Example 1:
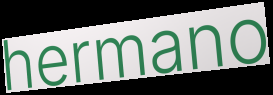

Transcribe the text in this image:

hermano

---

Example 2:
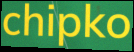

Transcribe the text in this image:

chipko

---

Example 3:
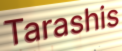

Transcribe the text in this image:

Tarashis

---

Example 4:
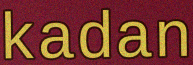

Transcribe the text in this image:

kadan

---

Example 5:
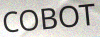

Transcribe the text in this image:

COBOT